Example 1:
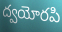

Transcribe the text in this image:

ద్వయోరపి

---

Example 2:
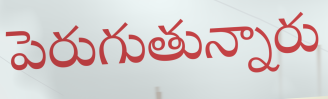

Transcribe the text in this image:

పెరుగుతున్నారు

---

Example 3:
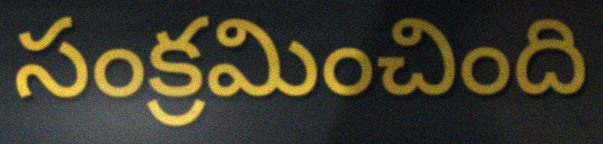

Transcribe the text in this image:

సంక్రమించింది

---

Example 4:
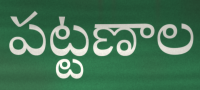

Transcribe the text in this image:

పట్టణాల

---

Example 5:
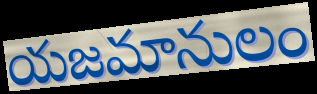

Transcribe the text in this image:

యజమానులం